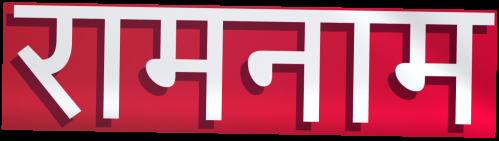
रामनाम